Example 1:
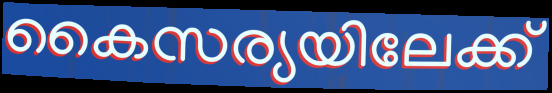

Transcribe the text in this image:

കൈസര്യയിലേക്ക്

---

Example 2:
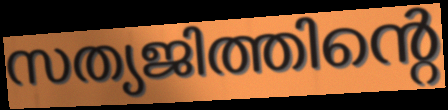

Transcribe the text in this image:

സത്യജിത്തിന്റെ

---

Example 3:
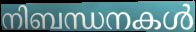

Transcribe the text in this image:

നിബന്ധനകൾ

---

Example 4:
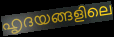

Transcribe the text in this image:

ഹൃദയങ്ങളിലെ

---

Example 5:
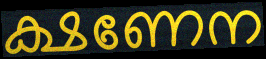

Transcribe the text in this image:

ക്ഷണേന